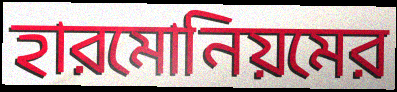
হারমোনিয়মের